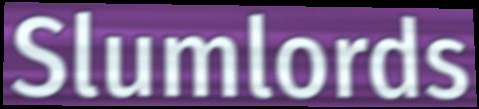
Slumlords